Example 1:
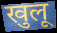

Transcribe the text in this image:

खुलू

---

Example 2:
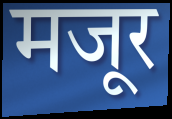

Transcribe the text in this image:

मजूर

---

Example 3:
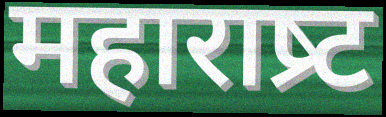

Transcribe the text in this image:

महाराष्र्ट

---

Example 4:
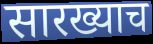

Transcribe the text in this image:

सारख्याच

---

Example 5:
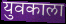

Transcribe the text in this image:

युवकाला